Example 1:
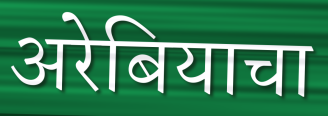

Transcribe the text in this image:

अरेबियाचा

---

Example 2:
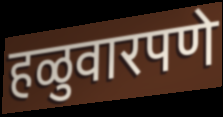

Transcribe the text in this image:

हळुवारपणे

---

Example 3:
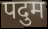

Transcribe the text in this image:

पदुम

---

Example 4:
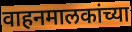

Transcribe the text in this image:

वाहनमालकांच्या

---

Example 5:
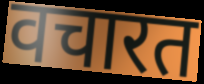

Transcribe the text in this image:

वचारत